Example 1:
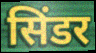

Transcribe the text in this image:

सिंडर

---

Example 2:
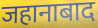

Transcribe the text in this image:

जहानाबाद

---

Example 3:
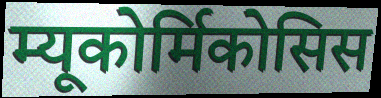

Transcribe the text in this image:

म्यूकोर्मिकोसिस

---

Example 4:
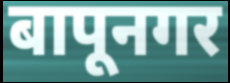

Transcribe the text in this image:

बापूनगर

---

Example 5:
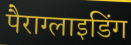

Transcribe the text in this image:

पैराग्लाइडिंग